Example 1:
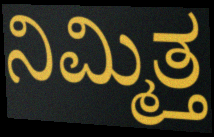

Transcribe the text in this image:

ನಿಮ್ಮಿತ್ತ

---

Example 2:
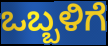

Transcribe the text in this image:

ಒಬ್ಬಳಿಗೆ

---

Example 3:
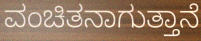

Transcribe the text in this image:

ವಂಚಿತನಾಗುತ್ತಾನೆ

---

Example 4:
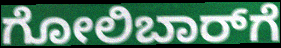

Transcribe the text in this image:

ಗೋಲಿಬಾರ್‌ಗೆ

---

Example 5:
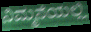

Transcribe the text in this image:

ನಿಮ್ಮನೆಯಲ್ಲಿ